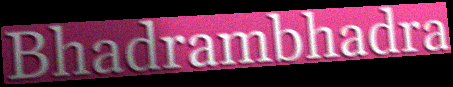
Bhadrambhadra